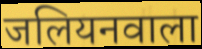
जलियनवाला